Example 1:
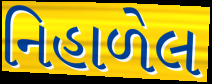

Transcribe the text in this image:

નિહાળેલ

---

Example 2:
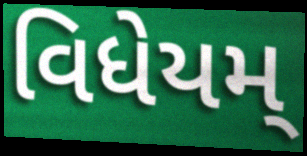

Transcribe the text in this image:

વિધેયમ્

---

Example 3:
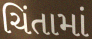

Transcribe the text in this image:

ચિંતામાં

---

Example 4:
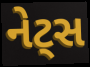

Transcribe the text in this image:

નેટ્સ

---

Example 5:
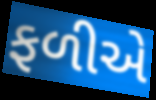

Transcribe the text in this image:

ફળીએ